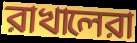
রাখালেরা